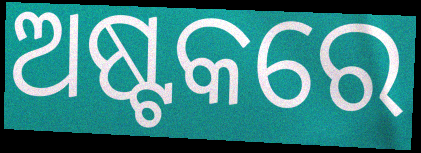
ଅଷ୍ଟକରେ